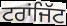
ਟਰਾਂਜਿੱਟ